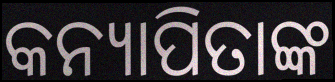
କନ୍ୟାପିତାଙ୍କ